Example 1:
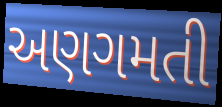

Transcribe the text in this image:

અણગમતી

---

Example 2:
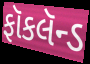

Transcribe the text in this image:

ફૉકલૅન્ડ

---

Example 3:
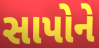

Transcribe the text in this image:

સાપોને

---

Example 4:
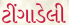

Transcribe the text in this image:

ટીંગાડેલી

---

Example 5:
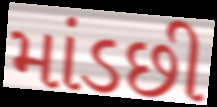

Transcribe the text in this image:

માંડછી